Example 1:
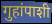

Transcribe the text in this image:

गुहांपाशी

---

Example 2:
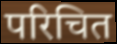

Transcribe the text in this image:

परिचित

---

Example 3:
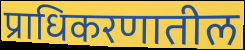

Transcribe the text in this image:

प्राधिकरणातील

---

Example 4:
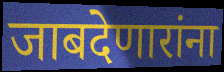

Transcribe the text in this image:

जाबदेणारांना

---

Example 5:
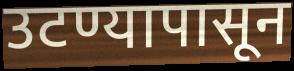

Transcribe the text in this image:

उटण्यापासून